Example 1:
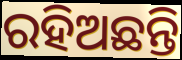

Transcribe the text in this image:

ରହିଅଛନ୍ତି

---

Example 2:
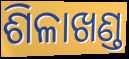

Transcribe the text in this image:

ଶିଳାଖଣ୍ଡ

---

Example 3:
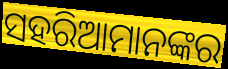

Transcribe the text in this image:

ସହରିଆମାନଙ୍କର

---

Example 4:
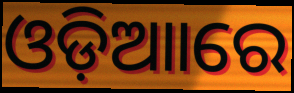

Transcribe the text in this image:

ଓଡ଼ିଆାରେ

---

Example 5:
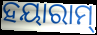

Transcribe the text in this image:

ହୟାରାମ୍